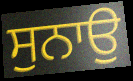
ਸੁਨਾਉ